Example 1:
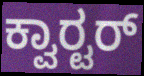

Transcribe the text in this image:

ಕ್ವಾರ‍್ಟರ್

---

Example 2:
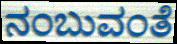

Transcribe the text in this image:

ನಂಬುವಂತೆ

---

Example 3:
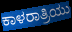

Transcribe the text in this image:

ಕಾಳರಾತ್ರಿಯು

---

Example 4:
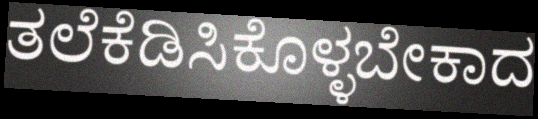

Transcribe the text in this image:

ತಲೆಕೆಡಿಸಿಕೊಳ್ಳಬೇಕಾದ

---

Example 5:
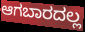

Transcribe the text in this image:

ಆಗಬಾರದಲ್ಲ